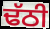
ਢੱਠੀ